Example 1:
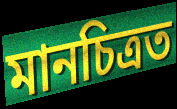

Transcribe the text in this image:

মানচিত্ৰত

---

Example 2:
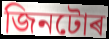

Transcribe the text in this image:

জিনটোৰ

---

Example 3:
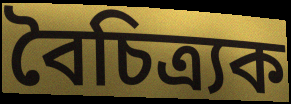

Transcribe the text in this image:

বৈচিত্ৰ্যক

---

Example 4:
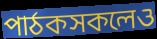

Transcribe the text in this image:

পাঠকসকলেও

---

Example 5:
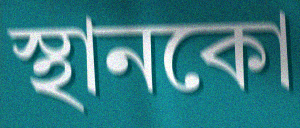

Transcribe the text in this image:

স্থানকো